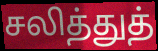
சலித்துத்